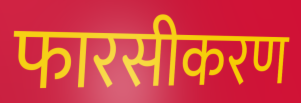
फारसीकरण